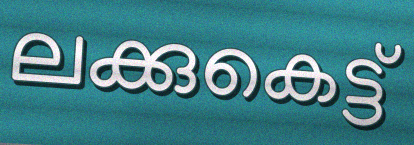
ലക്കുകെട്ട്